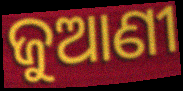
ଜୁଆଣୀ